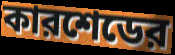
কারশেডের